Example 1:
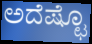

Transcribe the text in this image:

ಅದೆಷ್ಟೊ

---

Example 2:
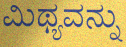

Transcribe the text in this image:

ಮಿಥ್ಯವನ್ನು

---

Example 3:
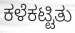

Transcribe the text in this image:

ಕಳೆಕಟ್ಟಿತು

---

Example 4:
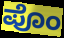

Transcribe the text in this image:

ಪೊಂ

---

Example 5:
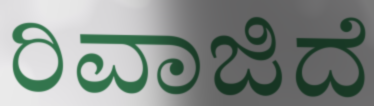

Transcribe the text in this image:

ರಿವಾಜಿದೆ